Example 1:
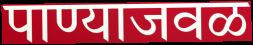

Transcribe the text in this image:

पाण्याजवळ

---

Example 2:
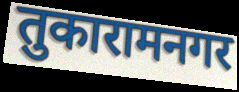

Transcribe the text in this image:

तुकारामनगर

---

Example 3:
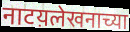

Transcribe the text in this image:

नाटय़लेखनाच्या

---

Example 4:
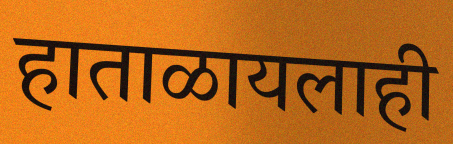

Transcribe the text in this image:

हाताळायलाही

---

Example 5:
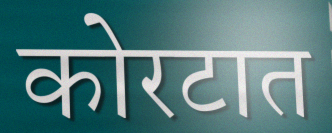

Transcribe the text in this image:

कोरटात